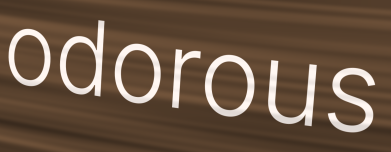
odorous